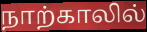
நாற்காலில்